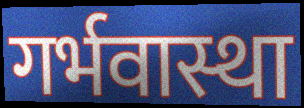
गर्भवास्था